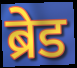
ब्रेड